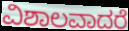
ವಿಶಾಲವಾದರೆ